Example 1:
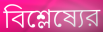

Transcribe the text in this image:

বিশ্লেষ্যের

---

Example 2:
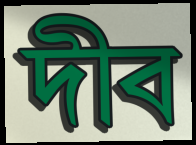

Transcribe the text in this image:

দীব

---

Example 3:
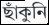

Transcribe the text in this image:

ছাঁকুনি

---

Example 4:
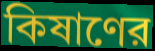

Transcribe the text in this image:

কিষাণের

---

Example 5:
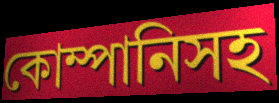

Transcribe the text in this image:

কোম্পানিসহ